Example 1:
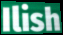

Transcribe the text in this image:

Ilish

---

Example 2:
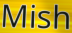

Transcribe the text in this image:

Mish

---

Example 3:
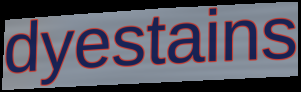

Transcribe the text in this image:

dyestains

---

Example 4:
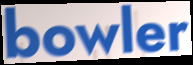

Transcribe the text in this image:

bowler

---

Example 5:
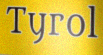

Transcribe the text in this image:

Tyrol